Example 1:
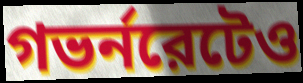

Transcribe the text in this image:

গভর্নরেটেও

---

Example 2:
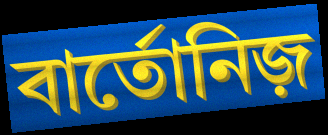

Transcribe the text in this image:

বার্তোনিজ়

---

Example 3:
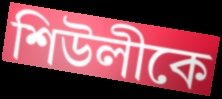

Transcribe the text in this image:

শিউলীকে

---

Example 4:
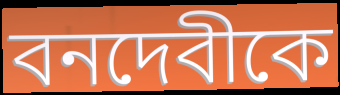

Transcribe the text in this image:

বনদেবীকে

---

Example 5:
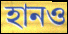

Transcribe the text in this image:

হানও